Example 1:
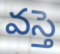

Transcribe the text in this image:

వస్తె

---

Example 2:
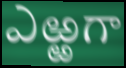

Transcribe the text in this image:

ఎఱ్ఱగా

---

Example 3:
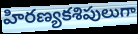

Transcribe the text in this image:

హిరణ్యకశిపులుగా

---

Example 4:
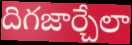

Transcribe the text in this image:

దిగజార్చేలా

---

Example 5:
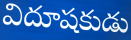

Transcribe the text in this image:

విదూషకుడు